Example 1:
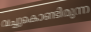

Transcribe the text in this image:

വച്ചുകൊണ്ടിരുന്ന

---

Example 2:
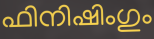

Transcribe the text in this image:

ഫിനിഷിംഗും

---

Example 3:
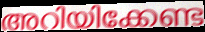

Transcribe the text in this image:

അറിയിക്കേണ്ട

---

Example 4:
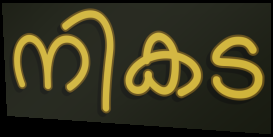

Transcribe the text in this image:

നികട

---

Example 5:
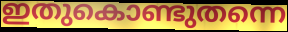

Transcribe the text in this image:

ഇതുകൊണ്ടുതന്നെ